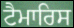
ਟੈਮਾਰਿਸ